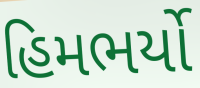
હિમભર્યો